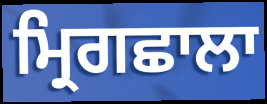
ਮ੍ਰਿਗਛਾਲਾ